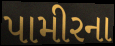
પામીરના